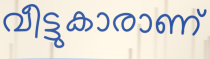
വീട്ടുകാരാണ്